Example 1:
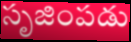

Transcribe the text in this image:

సృజింపడు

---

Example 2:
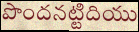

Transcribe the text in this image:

పొందనట్టిదియు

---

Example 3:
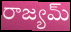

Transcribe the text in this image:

రాజ్యమ్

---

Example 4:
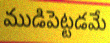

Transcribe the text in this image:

ముడిపెట్టడమే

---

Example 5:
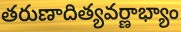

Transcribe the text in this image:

తరుణాదిత్యవర్ణాభ్యాం